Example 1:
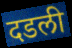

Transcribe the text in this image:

दडली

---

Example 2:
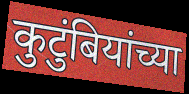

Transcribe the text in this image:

कुटुंबियांच्या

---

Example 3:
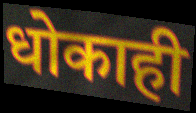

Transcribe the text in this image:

धोकाही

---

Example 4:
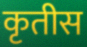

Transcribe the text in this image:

कृतीस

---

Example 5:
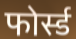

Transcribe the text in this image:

फोर्स्ड